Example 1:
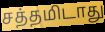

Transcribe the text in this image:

சத்தமிடாது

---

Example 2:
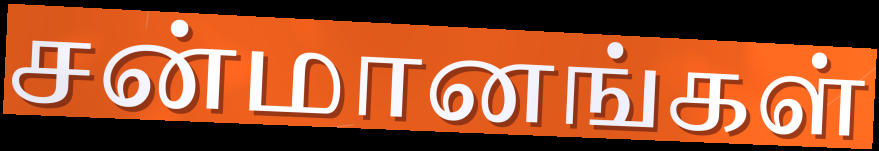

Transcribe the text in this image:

சன்மானங்கள்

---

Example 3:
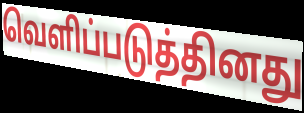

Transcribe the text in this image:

வெளிப்படுத்தினது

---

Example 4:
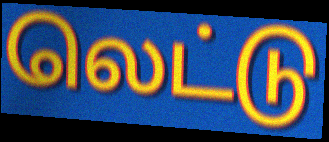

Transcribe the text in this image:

லெட்டு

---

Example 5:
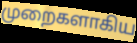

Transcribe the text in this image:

முறைகளாகிய